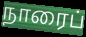
நாரைப்